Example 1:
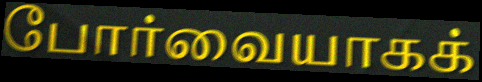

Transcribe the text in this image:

போர்வையாகக்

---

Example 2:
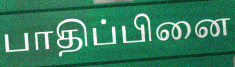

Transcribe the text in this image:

பாதிப்பினை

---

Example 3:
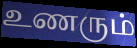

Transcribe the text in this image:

உணரும்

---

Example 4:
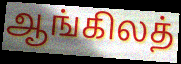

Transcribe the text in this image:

ஆங்கிலத்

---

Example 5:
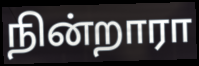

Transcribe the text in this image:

நின்றாரா